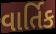
વાર્તિક